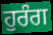
ਹੁਰੰਗ